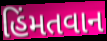
હિંમતવાન